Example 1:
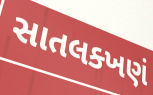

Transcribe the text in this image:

સાતલક્ખણં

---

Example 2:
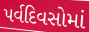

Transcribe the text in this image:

પર્વદિવસોમાં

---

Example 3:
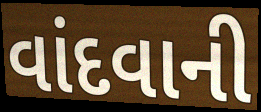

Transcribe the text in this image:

વાંદવાની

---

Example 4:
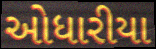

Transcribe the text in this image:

ઓધારીયા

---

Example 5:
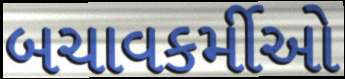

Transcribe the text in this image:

બચાવકર્મીઓ